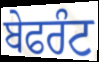
ਬੇਫਰੰਟ